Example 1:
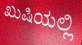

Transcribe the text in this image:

ಖುಷಿಯಲ್ಲಿ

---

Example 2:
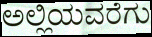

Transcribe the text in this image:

ಅಲ್ಲಿಯವರೆಗು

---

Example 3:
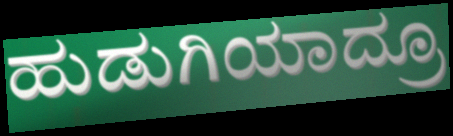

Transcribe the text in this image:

ಹುಡುಗಿಯಾದ್ರೂ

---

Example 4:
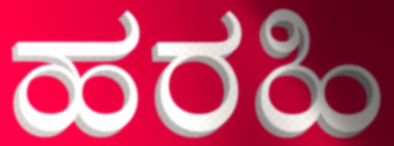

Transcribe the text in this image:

ಹರಹಿ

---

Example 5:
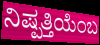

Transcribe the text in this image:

ನಿಷ್ಪತ್ತಿಯೆಂಬ